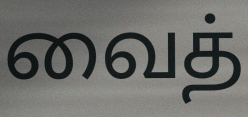
வைத்